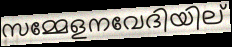
സമ്മേളനവേദിയില്